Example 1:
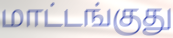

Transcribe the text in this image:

மாட்டங்குது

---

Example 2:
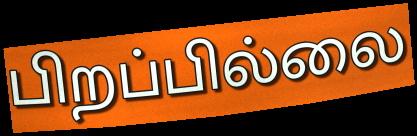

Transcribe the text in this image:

பிறப்பில்லை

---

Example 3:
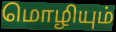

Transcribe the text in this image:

மொழியும்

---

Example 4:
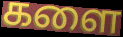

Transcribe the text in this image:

களை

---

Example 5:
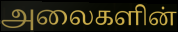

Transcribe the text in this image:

அலைகளின்